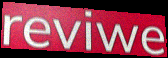
reviwe